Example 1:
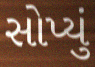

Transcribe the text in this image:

સોપ્યું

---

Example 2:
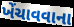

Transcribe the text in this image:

ખેંચાવવાના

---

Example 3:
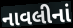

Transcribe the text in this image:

નાવલીનાં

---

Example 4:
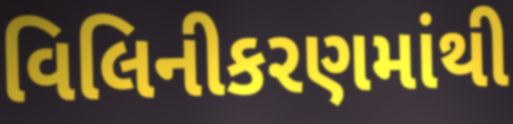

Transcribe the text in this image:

વિલિનીકરણમાંથી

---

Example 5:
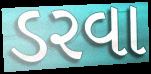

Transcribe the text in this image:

ડરવા